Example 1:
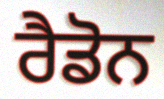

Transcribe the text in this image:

ਰੈਡੋਨ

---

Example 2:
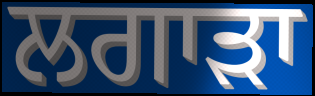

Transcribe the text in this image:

ਲਗਾੜਾ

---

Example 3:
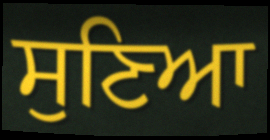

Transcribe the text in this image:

ਸੁਣਿਆ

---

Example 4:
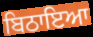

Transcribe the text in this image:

ਬਿਠਾਇਆ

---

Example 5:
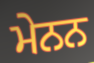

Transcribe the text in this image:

ਮੇਨਨ